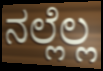
ನಲ್ಲೆಲ್ಲ